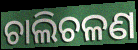
ଚାଲିଚଳଣ